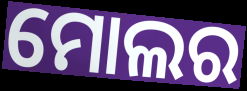
ମୋଲର